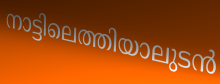
നാട്ടിലെത്തിയാലുടൻ